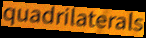
quadrilaterals